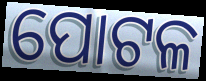
ପୋଟଳ